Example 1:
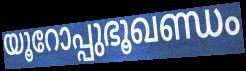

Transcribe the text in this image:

യൂറോപ്പുഭൂഖണ്ഡം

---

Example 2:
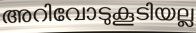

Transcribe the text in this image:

അറിവോടുകൂടിയല്ല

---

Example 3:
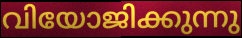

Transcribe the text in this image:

വിയോജിക്കുന്നു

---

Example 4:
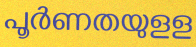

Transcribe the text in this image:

പൂർണതയുളള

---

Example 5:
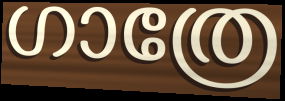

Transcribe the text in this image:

ഗാത്രേ